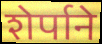
शेर्पाने